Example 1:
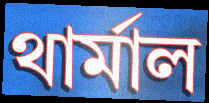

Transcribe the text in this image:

থার্মাল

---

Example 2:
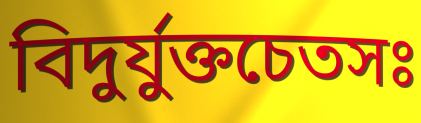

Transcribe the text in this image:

বিদুর্যুক্তচেতসঃ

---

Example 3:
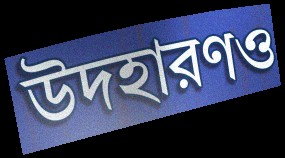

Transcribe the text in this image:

উদহারণও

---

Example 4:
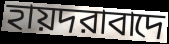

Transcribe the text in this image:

হায়দরাবাদে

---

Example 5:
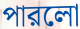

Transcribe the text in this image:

পারলো